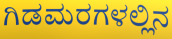
ಗಿಡಮರಗಳಲ್ಲಿನ